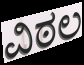
ವಿಠಲ